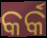
କର୍କ